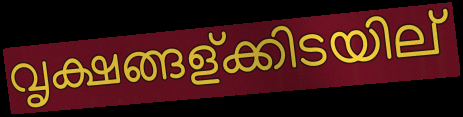
വൃക്ഷങ്ങള്ക്കിടയില്